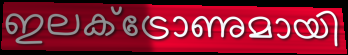
ഇലക്ട്രോണുമായി